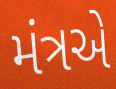
મંત્રએ